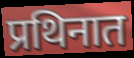
प्रथिनात